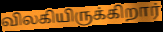
விலகியிருக்கிறார்